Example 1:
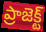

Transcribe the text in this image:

ప్రాజెక్ట్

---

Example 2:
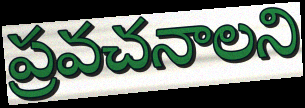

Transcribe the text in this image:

ప్రవచనాలని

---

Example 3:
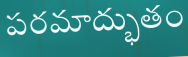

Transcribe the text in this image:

పరమాద్భుతం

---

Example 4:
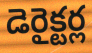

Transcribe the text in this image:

డెరైక్టర్ల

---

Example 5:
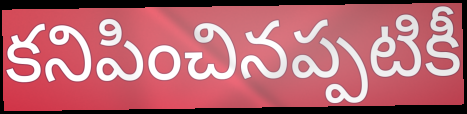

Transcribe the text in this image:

కనిపించినప్పటికీ